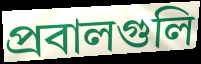
প্রবালগুলি